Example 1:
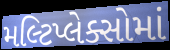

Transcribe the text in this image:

મલ્ટિપ્લેક્સોમાં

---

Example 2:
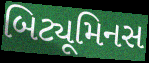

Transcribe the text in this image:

બિટ્યૂમિનસ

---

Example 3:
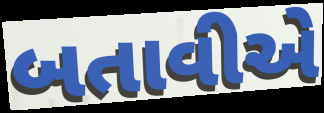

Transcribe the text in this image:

બતાવીએ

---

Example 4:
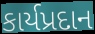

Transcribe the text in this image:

કાર્યપ્રદાન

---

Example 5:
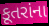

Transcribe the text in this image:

કૂતરાંના